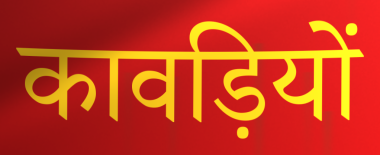
कावड़ियों